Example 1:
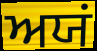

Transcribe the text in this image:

ਅਯਂ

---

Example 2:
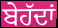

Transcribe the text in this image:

ਬੇਹੱਦਾਂ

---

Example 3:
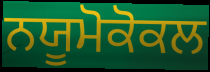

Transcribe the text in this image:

ਨਯੂਮੋਕੋਕਲ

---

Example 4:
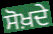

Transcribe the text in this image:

ਸੋਖ਼ਦੇ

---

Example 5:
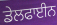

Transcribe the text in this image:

ਡੇਲਫਾਈਨ